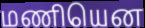
மணியென